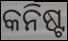
କନିଷ୍ଟ